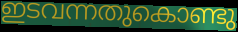
ഇടവന്നതുകൊണ്ടു